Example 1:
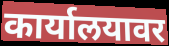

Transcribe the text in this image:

कार्यालयावर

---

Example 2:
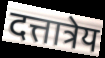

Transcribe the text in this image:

दत्तात्रेय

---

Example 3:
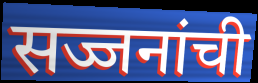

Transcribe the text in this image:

सज्जनांची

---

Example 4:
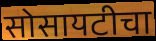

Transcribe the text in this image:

सोसायटीचा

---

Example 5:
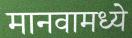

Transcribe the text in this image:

मानवामध्ये